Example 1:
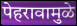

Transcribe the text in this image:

पेहरावामुळे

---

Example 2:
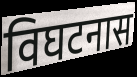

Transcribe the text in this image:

विघटनास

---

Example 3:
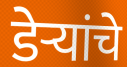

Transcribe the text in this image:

डेर्‍यांचे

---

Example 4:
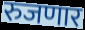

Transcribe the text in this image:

रुजणार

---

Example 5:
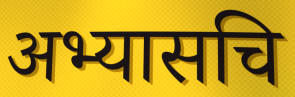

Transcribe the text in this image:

अभ्यासचि